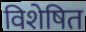
विशेषित